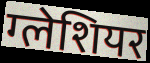
ग्लेशियर